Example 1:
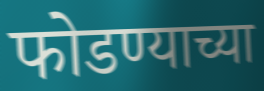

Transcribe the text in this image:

फोडण्याच्या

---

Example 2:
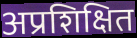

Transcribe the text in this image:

अप्रशिक्षित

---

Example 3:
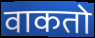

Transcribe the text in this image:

वाकतो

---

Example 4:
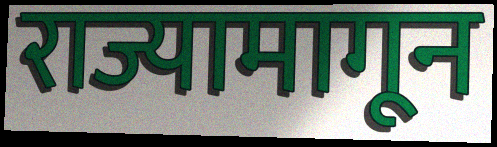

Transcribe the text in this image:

राज्यामागून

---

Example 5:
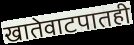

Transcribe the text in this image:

खातेवाटपातही